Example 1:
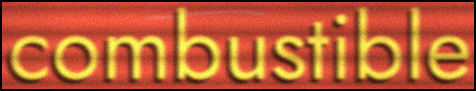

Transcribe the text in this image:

combustible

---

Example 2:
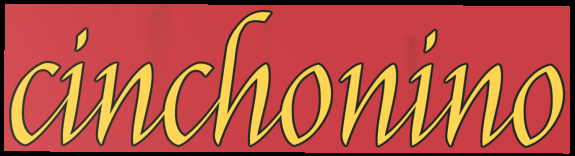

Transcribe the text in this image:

cinchonino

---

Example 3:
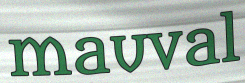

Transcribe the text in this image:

mauval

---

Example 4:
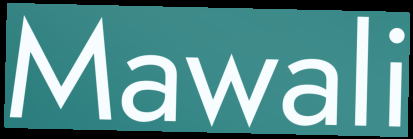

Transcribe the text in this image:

Mawali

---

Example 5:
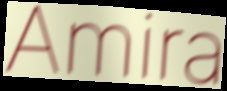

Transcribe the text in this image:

Amira